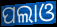
ପଲାଓ